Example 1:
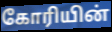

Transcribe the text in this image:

கோரியின்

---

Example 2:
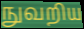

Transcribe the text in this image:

நுவறிய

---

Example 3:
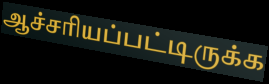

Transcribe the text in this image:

ஆச்சரியப்பட்டிருக்க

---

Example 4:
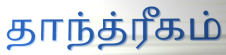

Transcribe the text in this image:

தாந்த்ரீகம்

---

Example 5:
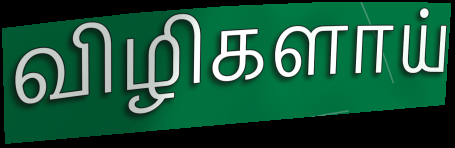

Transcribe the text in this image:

விழிகளாய்